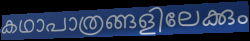
കഥാപാത്രങ്ങളിലേക്കും